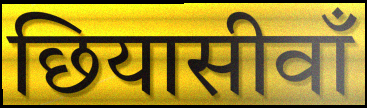
छियासीवाँ